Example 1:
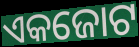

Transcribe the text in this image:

ଏକଜୋଟ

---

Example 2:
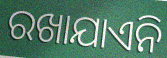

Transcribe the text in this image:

ରଖାଯାଏନି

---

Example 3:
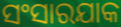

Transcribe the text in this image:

ସଂସାରଯାକ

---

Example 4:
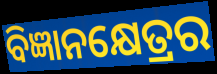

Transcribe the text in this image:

ବିଜ୍ଞାନକ୍ଷେତ୍ରର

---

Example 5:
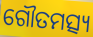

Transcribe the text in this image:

ଗୌତମତ୍ସ୍ୟ